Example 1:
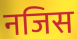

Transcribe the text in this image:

नजिस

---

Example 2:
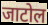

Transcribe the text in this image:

जाटोल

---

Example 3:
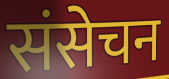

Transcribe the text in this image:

संसेचन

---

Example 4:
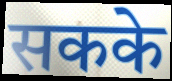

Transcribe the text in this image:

सकके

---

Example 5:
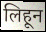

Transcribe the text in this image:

लिहून